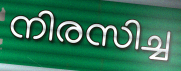
നിരസിച്ച